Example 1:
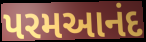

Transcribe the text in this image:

પરમઆનંદ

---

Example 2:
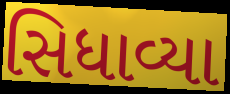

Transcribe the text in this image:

સિધાવ્યા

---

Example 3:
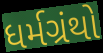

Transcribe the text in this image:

ધર્મગ્રંથો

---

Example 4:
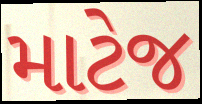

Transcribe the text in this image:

માટેજ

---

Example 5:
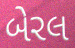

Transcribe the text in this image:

બેરલ